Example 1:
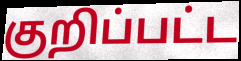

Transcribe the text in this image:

குறிப்பட்ட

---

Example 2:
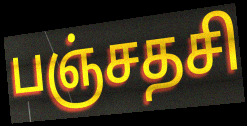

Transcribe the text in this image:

பஞ்சதசி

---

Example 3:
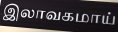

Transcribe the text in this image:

இலாவகமாய்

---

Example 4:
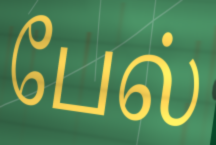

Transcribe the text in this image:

பேல்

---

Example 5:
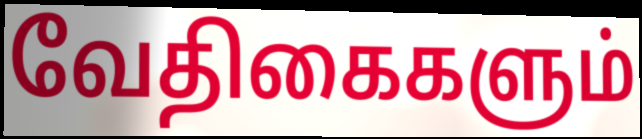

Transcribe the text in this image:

வேதிகைகளும்